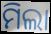
ମିଲା